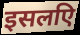
इसलएि